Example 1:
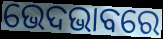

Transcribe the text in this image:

ଭେଦଭାବରେ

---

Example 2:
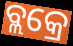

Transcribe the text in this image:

ବ୍ଲକ୍ରେ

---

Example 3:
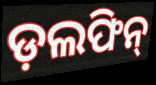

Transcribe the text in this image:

ଡ଼ଲଫିନ୍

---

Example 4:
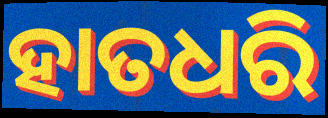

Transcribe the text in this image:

ହାତଧରି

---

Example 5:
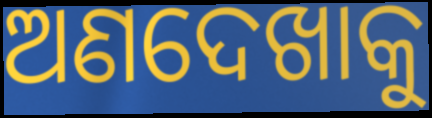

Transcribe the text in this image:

ଅଣଦେଖାକୁ